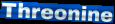
Threonine